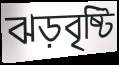
ঝড়বৃষ্টি